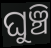
ଘୁଞ୍ଚି